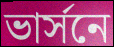
ভার্সনে